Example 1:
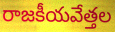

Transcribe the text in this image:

రాజకీయవేత్తల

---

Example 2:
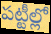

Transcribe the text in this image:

పట్టీల్లో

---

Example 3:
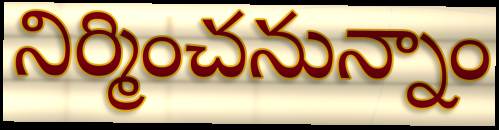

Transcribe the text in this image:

నిర్మించనున్నాం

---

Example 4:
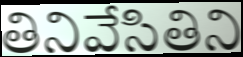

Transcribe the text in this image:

తినివేసితిని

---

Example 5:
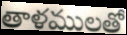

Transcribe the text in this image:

తాళములతో